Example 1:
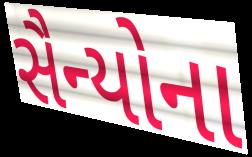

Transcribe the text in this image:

સૈન્યોના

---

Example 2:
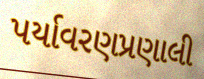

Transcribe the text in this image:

પર્યાવરણપ્રણાલી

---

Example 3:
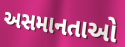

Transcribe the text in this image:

અસમાનતાઓ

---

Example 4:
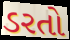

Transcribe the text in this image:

ડરતો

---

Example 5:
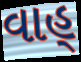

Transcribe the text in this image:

વાહ્